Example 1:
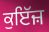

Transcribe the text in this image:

ਕੁਇੱਜ਼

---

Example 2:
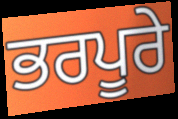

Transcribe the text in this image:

ਭਰਪੂਰੇ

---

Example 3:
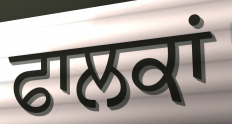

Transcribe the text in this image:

ਫਾਲਕਾਂ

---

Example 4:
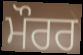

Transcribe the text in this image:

ਮੌਰਰ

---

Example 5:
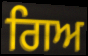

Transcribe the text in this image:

ਗਿਅ